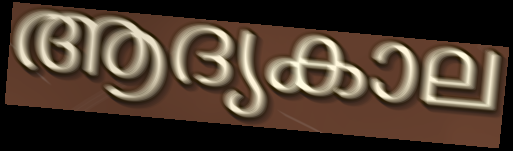
ആദ്യകാല